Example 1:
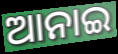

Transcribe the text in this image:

ଆନାଇ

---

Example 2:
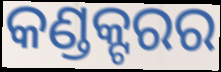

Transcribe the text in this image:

କଣ୍ଡକ୍ଟରର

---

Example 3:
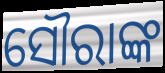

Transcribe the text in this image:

ସୌରାଙ୍କ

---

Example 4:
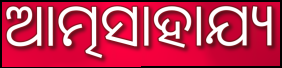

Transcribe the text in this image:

ଆତ୍ମସାହାଯ୍ୟ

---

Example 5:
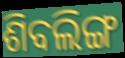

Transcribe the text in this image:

ଶିବଲିଙ୍ଗ